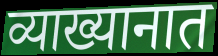
व्याख्यानात